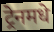
ट्रेनमधे